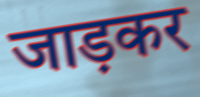
जाड़कर